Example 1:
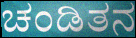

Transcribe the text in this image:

ಚಂಡಿತನ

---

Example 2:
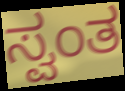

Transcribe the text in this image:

ಸ್ವಂತ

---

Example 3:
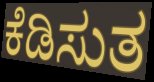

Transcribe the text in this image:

ಕೆಡಿಸುತ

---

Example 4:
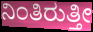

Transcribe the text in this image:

ನಿಂತಿರುತ್ತೀ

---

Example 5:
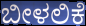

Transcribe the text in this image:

ಬೀಳಲಿಕೆ